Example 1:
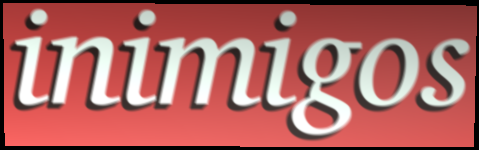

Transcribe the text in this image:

inimigos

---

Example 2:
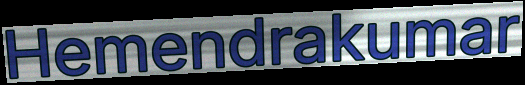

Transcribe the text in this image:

Hemendrakumar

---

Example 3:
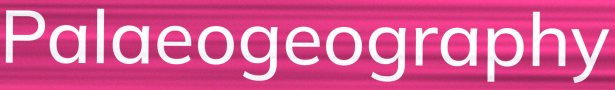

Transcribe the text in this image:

Palaeogeography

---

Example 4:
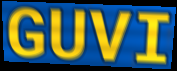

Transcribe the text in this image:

GUVI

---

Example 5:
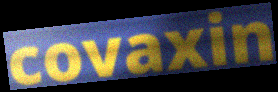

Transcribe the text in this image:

covaxin